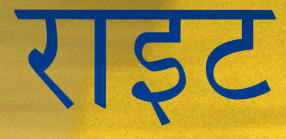
राइट